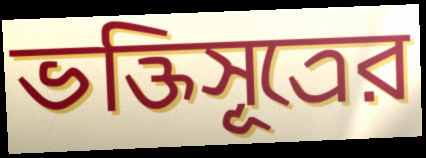
ভক্তিসূত্রের